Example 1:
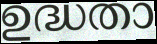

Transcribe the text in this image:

ഉദ്ധതാ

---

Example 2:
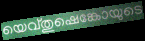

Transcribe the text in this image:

യെവ്തുഷെങ്കോയുടെ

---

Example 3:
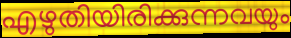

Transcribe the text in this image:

എഴുതിയിരിക്കുന്നവയും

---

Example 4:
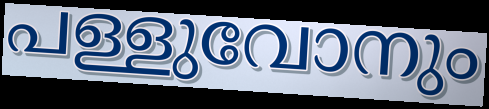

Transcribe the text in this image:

പള്ളുവോനും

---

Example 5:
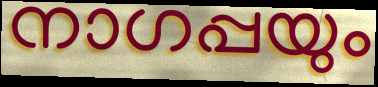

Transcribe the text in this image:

നാഗപ്പയും